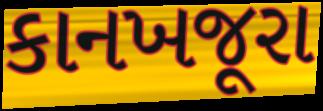
કાનખજૂરા